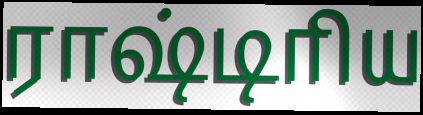
ராஷ்டிரிய